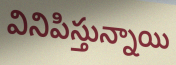
వినిపిస్తున్నాయి